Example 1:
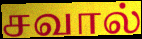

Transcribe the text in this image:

சவால்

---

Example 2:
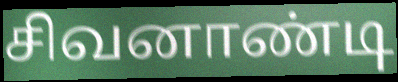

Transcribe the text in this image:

சிவனாண்டி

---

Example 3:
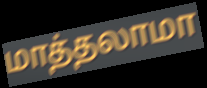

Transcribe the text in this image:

மாத்தலாமா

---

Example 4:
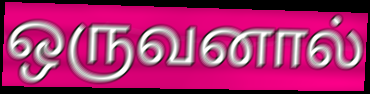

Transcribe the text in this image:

ஒருவனால்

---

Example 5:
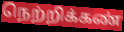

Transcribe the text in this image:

நெற்றிக்கண்